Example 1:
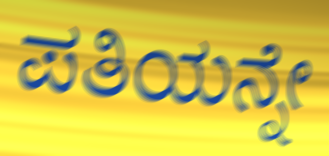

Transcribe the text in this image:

ಪತಿಯನ್ನೇ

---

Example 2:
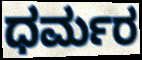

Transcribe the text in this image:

ಧರ್ಮರ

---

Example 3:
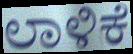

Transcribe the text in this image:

ಲಾಳಿಕೆ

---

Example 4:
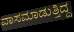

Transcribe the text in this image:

ವಾಸಮಾಡುತ್ತಿದ್ದ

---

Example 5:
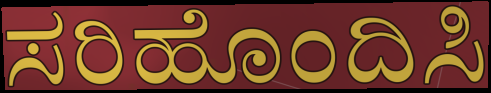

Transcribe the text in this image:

ಸರಿಹೊಂದಿಸಿ